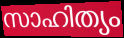
സാഹിത്യം